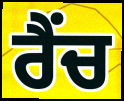
ਰੈਂਚ